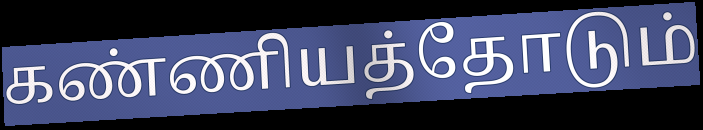
கண்ணியத்தோடும்